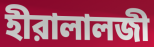
হীরালালজী